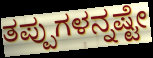
ತಪ್ಪುಗಳನ್ನಷ್ಟೇ